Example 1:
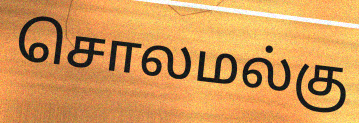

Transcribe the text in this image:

சொலமல்கு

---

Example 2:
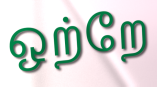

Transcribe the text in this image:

ஒற்றே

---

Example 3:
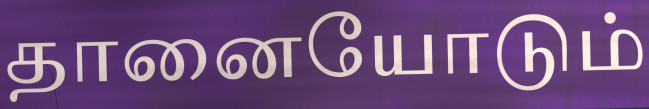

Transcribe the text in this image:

தானையோடும்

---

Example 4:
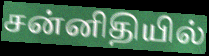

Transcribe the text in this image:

சன்னிதியில்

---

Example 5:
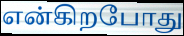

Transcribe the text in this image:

என்கிறபோது